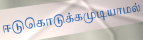
ஈடுகொடுக்கமுடியாமல்